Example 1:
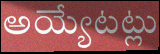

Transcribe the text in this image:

అయ్యేటట్లు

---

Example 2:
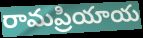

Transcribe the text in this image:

రామప్రియాయ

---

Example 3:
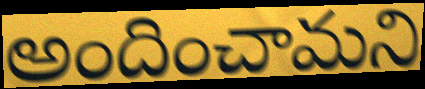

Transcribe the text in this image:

అందించామని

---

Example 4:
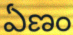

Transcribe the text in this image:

ఏణం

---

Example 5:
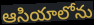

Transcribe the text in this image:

ఆసియాలోను